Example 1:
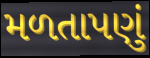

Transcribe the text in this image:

મળતાપણું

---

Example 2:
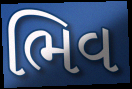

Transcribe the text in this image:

ભિવ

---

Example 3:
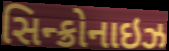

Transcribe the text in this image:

સિન્ક્રોનાઇઝ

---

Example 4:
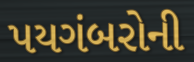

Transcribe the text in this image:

પયગંબરોની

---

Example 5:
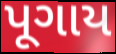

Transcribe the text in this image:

પૂગાય